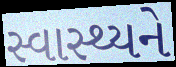
સ્વાસ્થ્યને